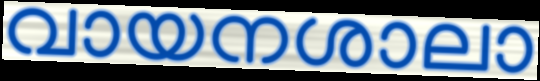
വായനശാലാ